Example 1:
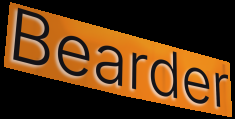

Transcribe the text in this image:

Bearder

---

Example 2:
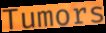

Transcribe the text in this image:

Tumors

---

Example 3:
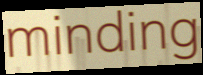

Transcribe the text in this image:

minding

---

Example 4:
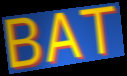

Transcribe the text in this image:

BAT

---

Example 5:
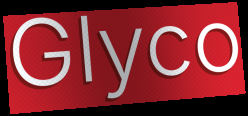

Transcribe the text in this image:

Glyco